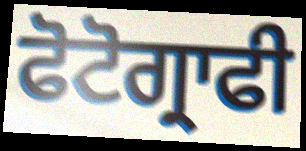
ਫੋਟੋਗ੍ਰਾਫੀ